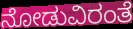
ನೋಡುವಿರಂತೆ